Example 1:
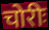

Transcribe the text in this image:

चोरीः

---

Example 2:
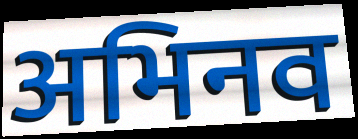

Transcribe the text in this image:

अभिनव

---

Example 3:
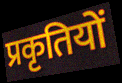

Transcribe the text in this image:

प्रकृतियों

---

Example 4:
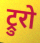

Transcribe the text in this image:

ट्रुरो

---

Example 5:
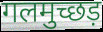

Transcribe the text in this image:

गलमुच्छड़